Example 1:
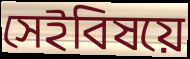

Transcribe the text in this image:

সেইবিষয়ে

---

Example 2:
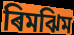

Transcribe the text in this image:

ৰিমঝিম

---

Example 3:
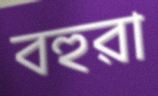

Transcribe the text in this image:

বহুৱা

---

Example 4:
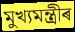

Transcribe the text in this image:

মুখ্যমন্ত্ৰীৰ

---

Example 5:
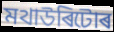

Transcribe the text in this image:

মথাউৰিটোৰ